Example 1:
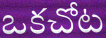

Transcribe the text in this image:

ఒకచోట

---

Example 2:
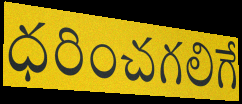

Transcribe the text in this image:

ధరించగలిగే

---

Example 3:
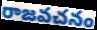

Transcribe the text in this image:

రాజవచనం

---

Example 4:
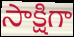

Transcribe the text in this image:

సాక్షిగా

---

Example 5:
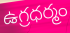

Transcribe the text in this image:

ఉగ్రధర్మం